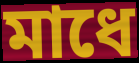
মাধে